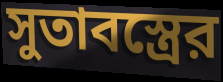
সুতাবস্ত্রের